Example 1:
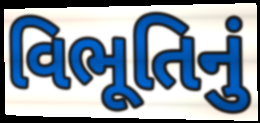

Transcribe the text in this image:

વિભૂતિનું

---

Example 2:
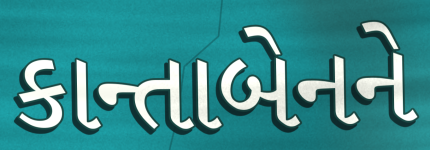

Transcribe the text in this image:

કાન્તાબેનને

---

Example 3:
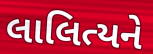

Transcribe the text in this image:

લાલિત્યને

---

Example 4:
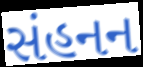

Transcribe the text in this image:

સંહનન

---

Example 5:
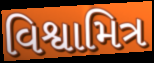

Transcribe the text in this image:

વિશ્વામિત્ર